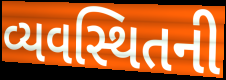
વ્યવસ્થિતની